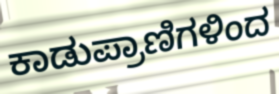
ಕಾಡುಪ್ರಾಣಿಗಳಿಂದ